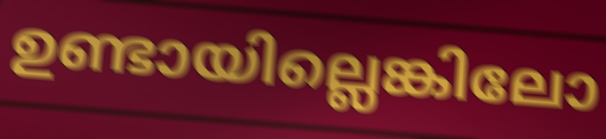
ഉണ്ടായില്ലെങ്കിലോ